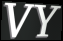
VY